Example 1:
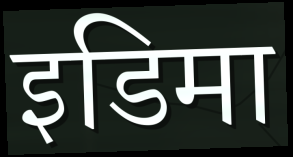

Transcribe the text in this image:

इडिमा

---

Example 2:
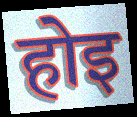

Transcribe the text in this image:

होइ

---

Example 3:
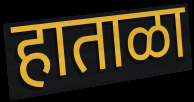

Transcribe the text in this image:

हाताळा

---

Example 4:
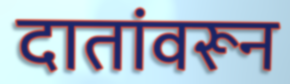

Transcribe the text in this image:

दातांवरून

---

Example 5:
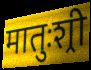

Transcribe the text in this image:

मातुःश्री